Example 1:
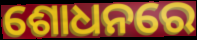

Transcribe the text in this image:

ଶୋଧନରେ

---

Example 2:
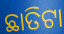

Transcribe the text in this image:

ଛାତିଟା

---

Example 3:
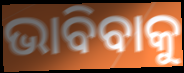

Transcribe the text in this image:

ଭାବିବାକୁ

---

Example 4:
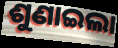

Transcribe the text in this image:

ଶୁଣାଇଲା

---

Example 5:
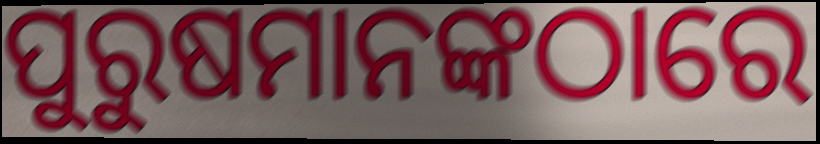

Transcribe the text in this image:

ପୁରୁଷମାନଙ୍କଠାରେ